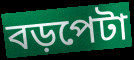
বড়পেটা